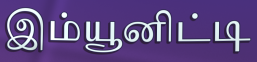
இம்யூனிட்டி